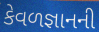
કેવળજ્ઞાનની